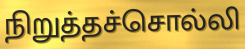
நிறுத்தச்சொல்லி